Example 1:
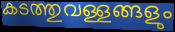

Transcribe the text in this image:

കടത്തുവള്ളങ്ങളും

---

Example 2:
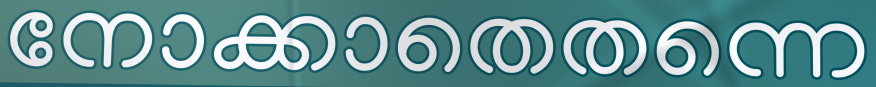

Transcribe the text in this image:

നോക്കാതെതന്നെ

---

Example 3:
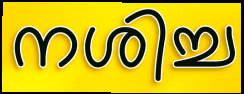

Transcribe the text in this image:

നശിച്ച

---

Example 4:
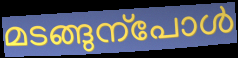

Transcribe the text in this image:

മടങ്ങുന്പോൾ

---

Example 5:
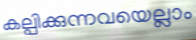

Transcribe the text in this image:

കല്പിക്കുന്നവയെല്ലാം